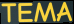
TEMA